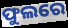
ଫୁଲରେ